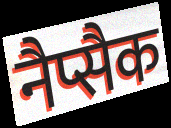
नैप्सैक